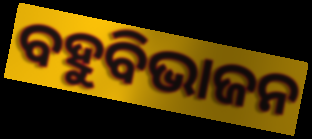
ବହୁବିଭାଜନ